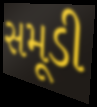
સમૂડી